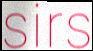
sirs